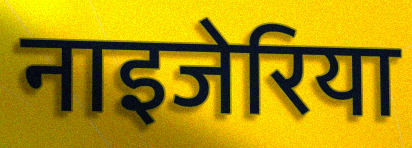
नाइजेरिया